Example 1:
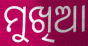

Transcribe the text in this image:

ମୁଖିଆ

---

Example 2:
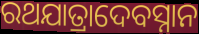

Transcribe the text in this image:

ରଥଯାତ୍ରାଦେବସ୍ନାନ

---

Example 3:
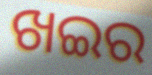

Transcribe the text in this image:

ଖଇର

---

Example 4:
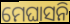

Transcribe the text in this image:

ମେଘାସନି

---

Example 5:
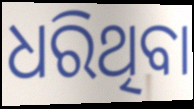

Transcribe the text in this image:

ଧରିଥିବା